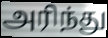
அரிந்து